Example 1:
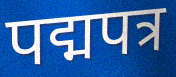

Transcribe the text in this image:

पद्मपत्र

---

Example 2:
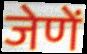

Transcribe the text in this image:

जेणें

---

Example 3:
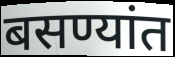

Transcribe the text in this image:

बसण्यांत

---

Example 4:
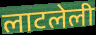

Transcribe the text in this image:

लाटलेली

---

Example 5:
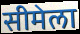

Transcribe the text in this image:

सीमेला